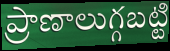
ప్రాణాలుగ్గబట్టి